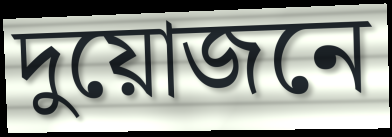
দুয়োজনে